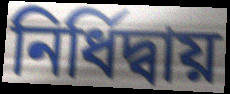
নির্ধিদ্বায়